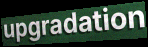
upgradation